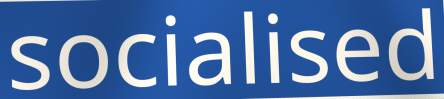
socialised